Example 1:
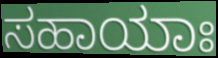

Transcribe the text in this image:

ಸಹಾಯಾಃ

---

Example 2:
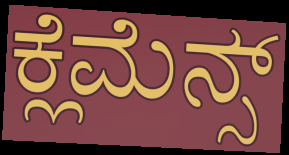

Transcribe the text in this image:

ಕ್ಲೆಮೆನ್ಸ್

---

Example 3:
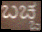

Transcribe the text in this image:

ಬಚ್ಚ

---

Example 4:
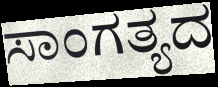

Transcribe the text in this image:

ಸಾಂಗತ್ಯದ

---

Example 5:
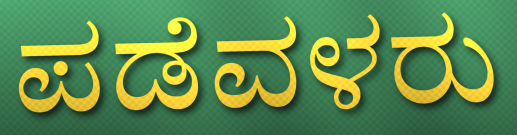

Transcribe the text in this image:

ಪಡೆವಳರು